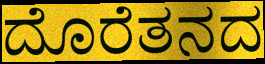
ದೊರೆತನದ